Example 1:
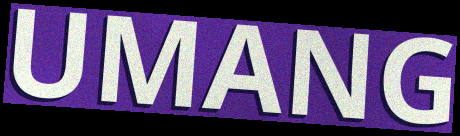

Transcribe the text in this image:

UMANG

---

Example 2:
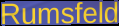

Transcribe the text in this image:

Rumsfeld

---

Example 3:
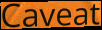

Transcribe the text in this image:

Caveat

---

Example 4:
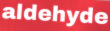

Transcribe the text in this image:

aldehyde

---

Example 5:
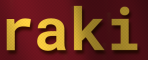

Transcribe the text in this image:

raki